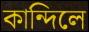
কান্দিলে